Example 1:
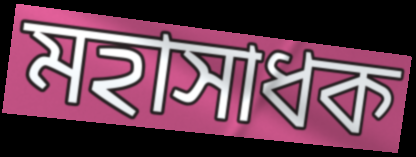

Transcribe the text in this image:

মহাসাধক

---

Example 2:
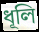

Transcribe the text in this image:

ধূলি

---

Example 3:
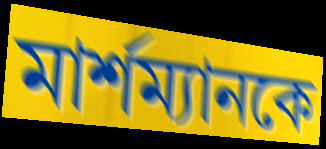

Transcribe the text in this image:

মার্শম্যানকে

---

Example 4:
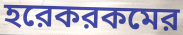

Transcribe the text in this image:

হরেকরকমের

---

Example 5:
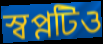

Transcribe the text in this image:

স্বপ্নটিও